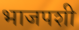
भाजपशी